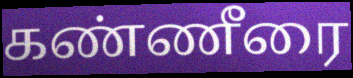
கண்ணீரை